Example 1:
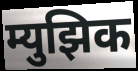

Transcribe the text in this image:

म्युझिक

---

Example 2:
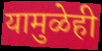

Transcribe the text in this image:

यामुळेही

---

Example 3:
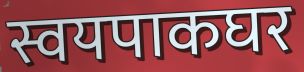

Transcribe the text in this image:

स्वयपाकघर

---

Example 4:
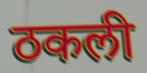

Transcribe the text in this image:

ठकली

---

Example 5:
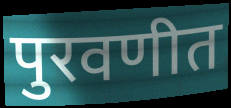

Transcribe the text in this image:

पुरवणीत